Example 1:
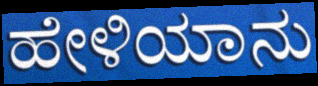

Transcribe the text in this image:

ಹೇಳಿಯಾನು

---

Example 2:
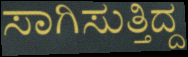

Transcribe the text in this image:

ಸಾಗಿಸುತ್ತಿದ್ದ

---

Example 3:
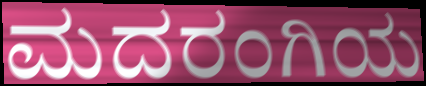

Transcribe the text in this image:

ಮದರಂಗಿಯ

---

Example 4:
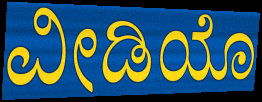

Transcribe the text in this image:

ವೀಡಿಯೊ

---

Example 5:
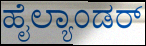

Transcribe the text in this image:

ಹೈಲ್ಯಾಂಡರ್